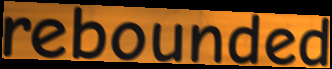
rebounded